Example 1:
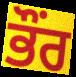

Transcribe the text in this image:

ਭੌਂਰ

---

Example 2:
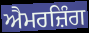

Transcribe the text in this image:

ਐਮਰਜ਼ਿੰਗ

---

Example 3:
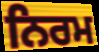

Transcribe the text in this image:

ਨਿਰਮ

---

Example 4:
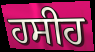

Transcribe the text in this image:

ਹਸੀਹ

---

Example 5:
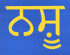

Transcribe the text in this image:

ਨਸ਼ੂ